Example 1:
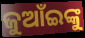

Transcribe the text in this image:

ଜୁଆଁଇଙ୍କୁ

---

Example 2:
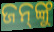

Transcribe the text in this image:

ଜନ୍‍ଙ୍କୁ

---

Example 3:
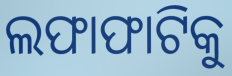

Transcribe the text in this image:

ଲଫାଫାଟିକୁ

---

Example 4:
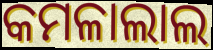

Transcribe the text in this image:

କମଳାଲାଲ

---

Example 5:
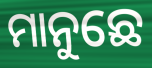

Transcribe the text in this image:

ମାନୁଛେ